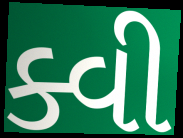
ક્વી